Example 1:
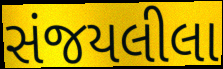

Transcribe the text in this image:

સંજયલીલા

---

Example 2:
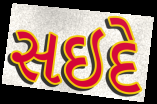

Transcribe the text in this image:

સઇદે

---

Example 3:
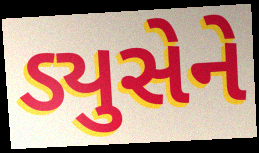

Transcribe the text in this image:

ડ્યુસેને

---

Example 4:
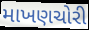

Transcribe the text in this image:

માખણચોરી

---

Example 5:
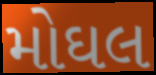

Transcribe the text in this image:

મોઘલ